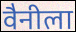
वैनीला